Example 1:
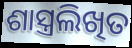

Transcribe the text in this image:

ଶାସ୍ତ୍ରଲିଖିତ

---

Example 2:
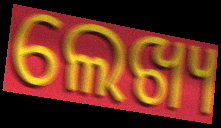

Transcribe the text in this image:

ଲେଖ୍ୟ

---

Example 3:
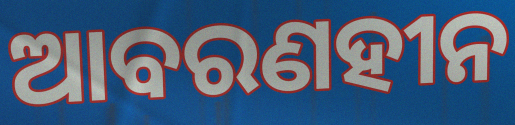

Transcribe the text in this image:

ଆବରଣହୀନ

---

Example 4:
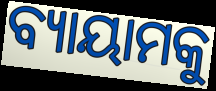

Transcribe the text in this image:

ବ୍ୟାୟାମକୁ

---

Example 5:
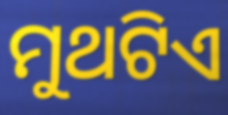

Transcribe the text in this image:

ମୁଥଟିଏ